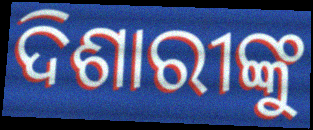
ଦିଶାରୀଙ୍କୁ